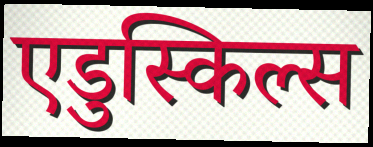
एडुस्किल्स